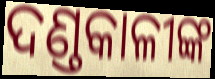
ଦଣ୍ଡକାଳୀଙ୍କ